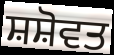
ਸ਼ਸ਼ੋਵਤ